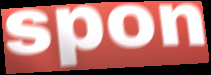
spon